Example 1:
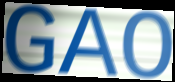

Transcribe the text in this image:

GAO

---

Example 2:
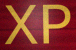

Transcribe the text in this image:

XP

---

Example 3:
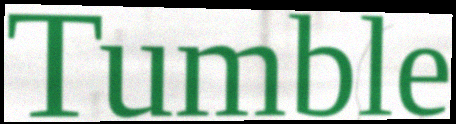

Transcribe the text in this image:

Tumble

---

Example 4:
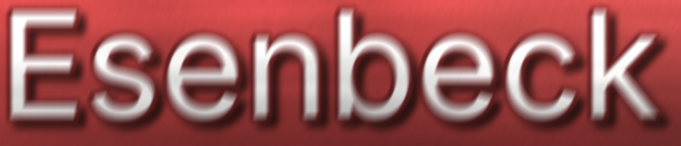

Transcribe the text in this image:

Esenbeck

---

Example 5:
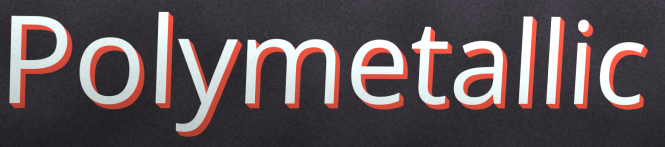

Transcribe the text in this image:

Polymetallic